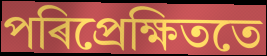
পৰিপ্ৰেক্ষিততে